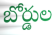
బోర్డుల